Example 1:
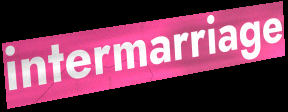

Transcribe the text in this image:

intermarriage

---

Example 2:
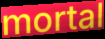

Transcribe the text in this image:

mortal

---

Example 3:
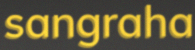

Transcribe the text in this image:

sangraha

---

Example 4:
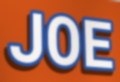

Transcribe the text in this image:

JOE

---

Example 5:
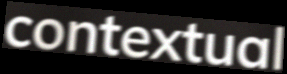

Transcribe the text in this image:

contextual